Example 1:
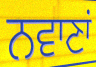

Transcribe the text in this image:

ਨਵਾਣਾਂ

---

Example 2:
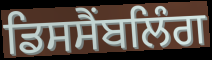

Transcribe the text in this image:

ਡਿਸਸੈਂਬਲਿੰਗ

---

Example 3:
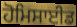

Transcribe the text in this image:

ਹੋਮਿਸਾਈਡ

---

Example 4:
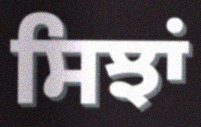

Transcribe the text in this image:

ਸਿਝਾਂ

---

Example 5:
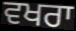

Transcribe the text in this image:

ਵਖਰਾ